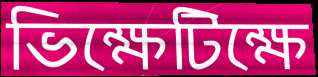
ভিক্ষেটিক্ষে